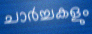
ചാർച്ചകളും